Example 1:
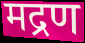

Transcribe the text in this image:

मद्रण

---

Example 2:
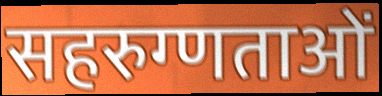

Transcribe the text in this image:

सहरुग्णताओं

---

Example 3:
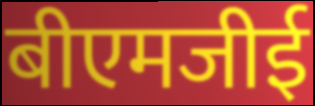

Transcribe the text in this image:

बीएमजीई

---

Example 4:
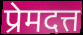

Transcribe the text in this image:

प्रेमदत्त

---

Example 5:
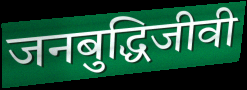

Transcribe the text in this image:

जनबुद्धिजीवी